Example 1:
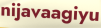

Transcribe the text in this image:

nijavaagiyu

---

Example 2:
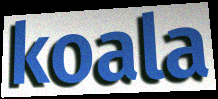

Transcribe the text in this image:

koala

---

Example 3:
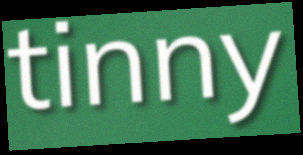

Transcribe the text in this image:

tinny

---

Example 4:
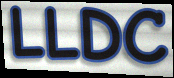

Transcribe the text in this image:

LLDC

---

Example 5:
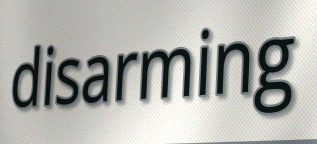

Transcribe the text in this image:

disarming